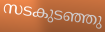
സടകുടഞ്ഞു